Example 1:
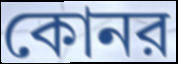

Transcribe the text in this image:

কোনর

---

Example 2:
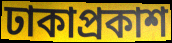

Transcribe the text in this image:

ঢাকাপ্রকাশ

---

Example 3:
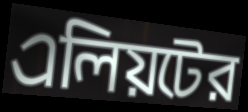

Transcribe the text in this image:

এলিয়টের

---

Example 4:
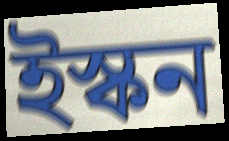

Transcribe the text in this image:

ইস্কন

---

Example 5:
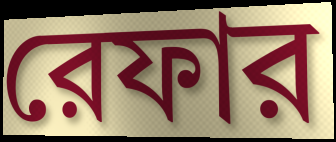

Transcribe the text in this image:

রেফার